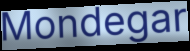
Mondegar